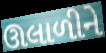
ઊલાળીને